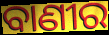
ବାଣୀର